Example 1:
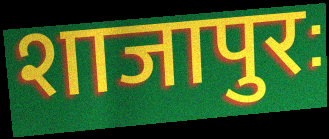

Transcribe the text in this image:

शाजापुरः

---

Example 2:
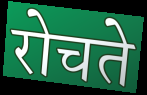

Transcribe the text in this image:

रोचते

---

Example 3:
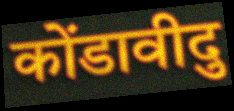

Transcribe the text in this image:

कोंडावीदु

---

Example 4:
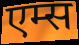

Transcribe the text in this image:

एम्‍स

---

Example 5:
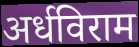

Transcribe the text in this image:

अर्धविराम